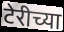
टेरीच्या